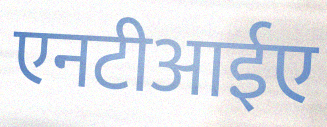
एनटीआईए